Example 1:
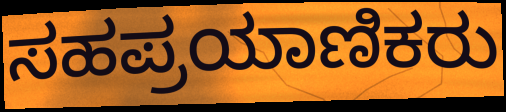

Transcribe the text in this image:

ಸಹಪ್ರಯಾಣಿಕರು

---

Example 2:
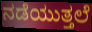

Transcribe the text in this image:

ನಡೆಯುತ್ತಲೆ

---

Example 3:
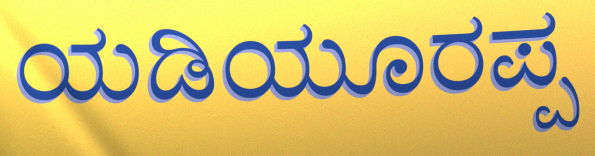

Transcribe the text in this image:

ಯಡಿಯೂರಪ್ಪ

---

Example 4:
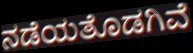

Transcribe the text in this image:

ನಡೆಯತೊಡಗಿವೆ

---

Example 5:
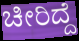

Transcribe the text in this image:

ಚೀರಿದ್ದೆ